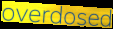
overdosed